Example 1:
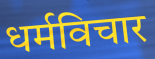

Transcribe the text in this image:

धर्मविचार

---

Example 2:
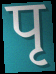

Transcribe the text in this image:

पृ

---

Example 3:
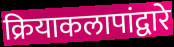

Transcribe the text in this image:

क्रियाकलापांद्वारे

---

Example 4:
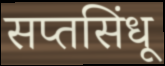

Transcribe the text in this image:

सप्तसिंधू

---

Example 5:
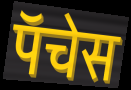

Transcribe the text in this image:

पॅचेस